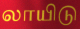
லாயிடு